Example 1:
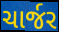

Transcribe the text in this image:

ચાર્જર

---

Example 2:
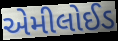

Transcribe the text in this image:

એમીલોઈડ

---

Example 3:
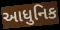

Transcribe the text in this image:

આધુનિક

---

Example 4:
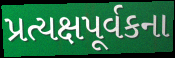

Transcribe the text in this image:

પ્રત્યક્ષપૂર્વકના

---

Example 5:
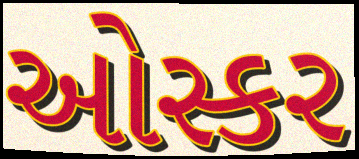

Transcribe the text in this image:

ઓસ્કર